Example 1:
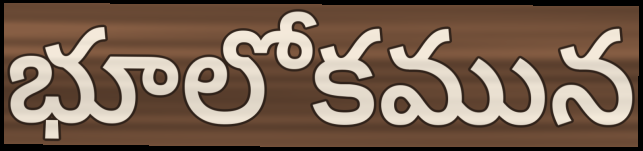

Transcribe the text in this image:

భూలోకమున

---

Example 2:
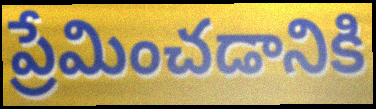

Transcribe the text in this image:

ప్రేమించడానికి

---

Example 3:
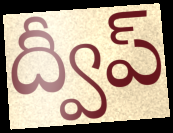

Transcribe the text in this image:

ద్వీప్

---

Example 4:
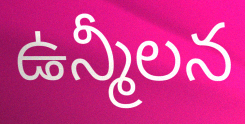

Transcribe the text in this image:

ఉన్మీలన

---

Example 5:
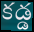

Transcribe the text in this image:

కడ్డ